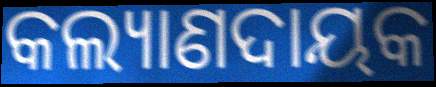
କଲ୍ୟାଣଦାୟକ